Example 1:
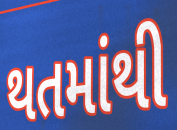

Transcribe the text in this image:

થતમાંથી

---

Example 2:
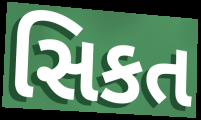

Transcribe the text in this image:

સિકત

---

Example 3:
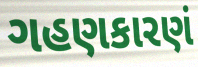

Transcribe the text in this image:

ગહણકારણં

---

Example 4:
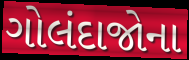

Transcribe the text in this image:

ગોલંદાજોના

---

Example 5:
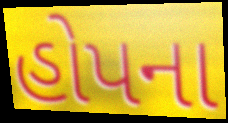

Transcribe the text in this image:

હોપના